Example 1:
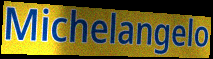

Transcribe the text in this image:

Michelangelo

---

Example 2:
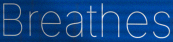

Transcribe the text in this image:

Breathes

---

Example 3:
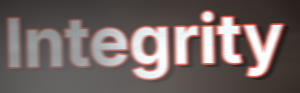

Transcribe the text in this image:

Integrity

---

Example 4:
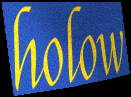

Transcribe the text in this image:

holow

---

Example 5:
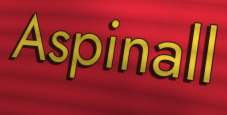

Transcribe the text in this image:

Aspinall